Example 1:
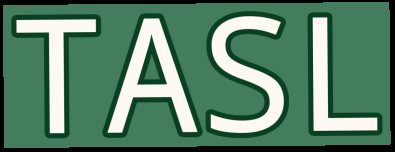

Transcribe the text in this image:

TASL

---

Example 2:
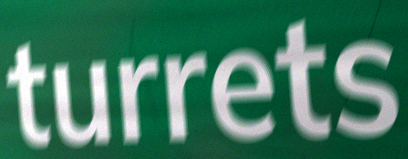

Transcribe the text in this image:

turrets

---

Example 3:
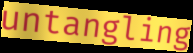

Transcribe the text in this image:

untangling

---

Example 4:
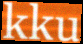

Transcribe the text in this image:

kku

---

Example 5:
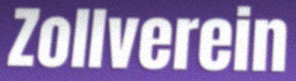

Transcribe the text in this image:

Zollverein